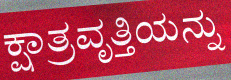
ಕ್ಷಾತ್ರವೃತ್ತಿಯನ್ನು